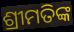
ଶ୍ରୀମତିଙ୍କ